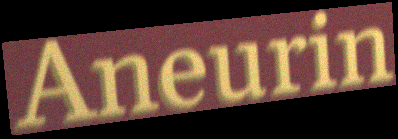
Aneurin